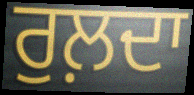
ਰੁਲ਼ਦਾ